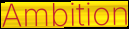
Ambition